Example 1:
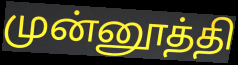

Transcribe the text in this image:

முன்னூத்தி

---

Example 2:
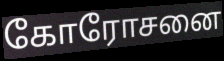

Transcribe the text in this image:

கோரோசனை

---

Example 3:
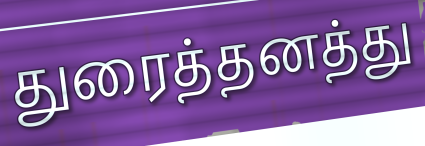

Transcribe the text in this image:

துரைத்தனத்து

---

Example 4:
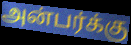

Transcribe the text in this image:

அன்பர்க்கு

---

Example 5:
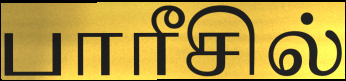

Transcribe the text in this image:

பாரீசில்